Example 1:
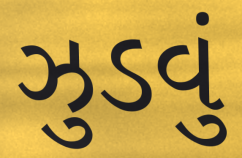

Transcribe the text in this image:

ઝુડવું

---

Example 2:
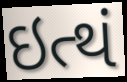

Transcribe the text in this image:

ઇત્થં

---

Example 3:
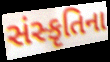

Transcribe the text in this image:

સંસ્કૃતિના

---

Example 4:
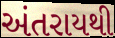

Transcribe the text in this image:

અંતરાયથી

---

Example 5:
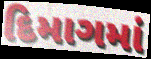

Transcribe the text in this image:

દિમાગમાં